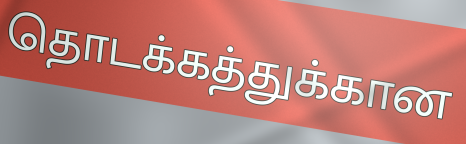
தொடக்கத்துக்கான